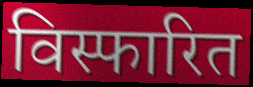
विस्फारित